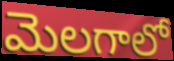
మెలగాలో